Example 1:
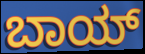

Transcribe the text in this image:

ಬಾಯ್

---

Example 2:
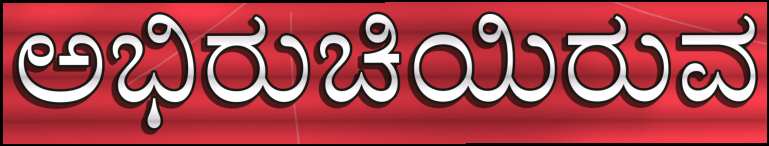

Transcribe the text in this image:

ಅಭಿರುಚಿಯಿರುವ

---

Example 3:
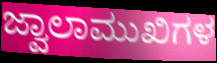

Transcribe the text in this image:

ಜ್ವಾಲಾಮುಖಿಗಳ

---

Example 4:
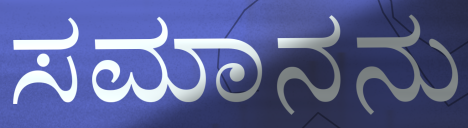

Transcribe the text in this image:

ಸಮಾನನು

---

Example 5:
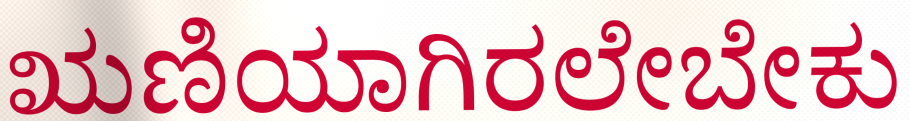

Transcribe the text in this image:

ಋಣಿಯಾಗಿರಲೇಬೇಕು